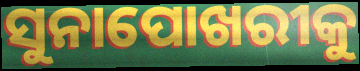
ସୁନାପୋଖରୀକୁ